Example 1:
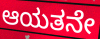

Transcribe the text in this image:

ಆಯತನೇ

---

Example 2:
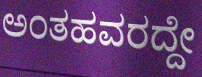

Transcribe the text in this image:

ಅಂತಹವರದ್ದೇ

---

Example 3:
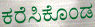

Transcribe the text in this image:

ಕರೆಸಿಕೊಂಡ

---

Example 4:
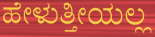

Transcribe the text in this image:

ಹೇಳುತ್ತೀಯಲ್ಲ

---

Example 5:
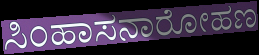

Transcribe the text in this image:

ಸಿಂಹಾಸನಾರೋಹಣ